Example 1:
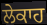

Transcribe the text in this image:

ਲੇਕਾਹ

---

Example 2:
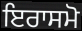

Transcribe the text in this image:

ਇਰਾਸਮੋ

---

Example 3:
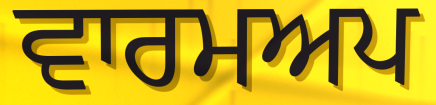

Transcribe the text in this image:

ਵਾਰਮਅਪ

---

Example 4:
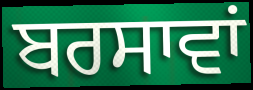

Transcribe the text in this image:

ਬਰਸਾਵਾਂ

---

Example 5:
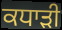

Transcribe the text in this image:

ਕਧਾੜੀ